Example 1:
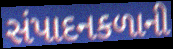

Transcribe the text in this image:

સંપાદનકળાની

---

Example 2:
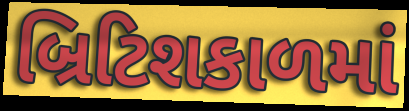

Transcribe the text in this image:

બ્રિટિશકાળમાં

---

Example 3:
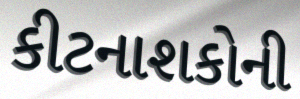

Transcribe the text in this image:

કીટનાશકોની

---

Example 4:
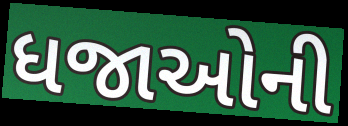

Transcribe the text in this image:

ધજાઓની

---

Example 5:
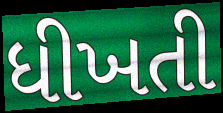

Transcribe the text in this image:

ધીખતી